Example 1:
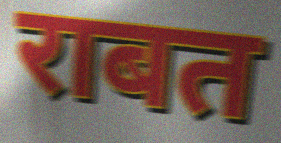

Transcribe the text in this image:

राबत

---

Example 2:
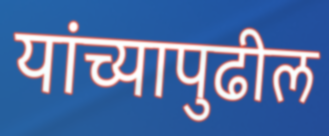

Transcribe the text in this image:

यांच्यापुढील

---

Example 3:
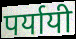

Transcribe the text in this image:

पर्यायी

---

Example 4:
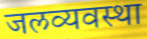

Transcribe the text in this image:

जलव्यवस्था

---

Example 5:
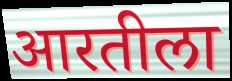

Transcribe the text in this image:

आरतीला